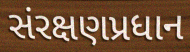
સંરક્ષણપ્રધાન